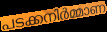
പടക്കനിർമ്മാണ